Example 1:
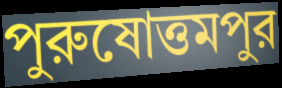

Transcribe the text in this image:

পুরুষোত্তমপুর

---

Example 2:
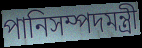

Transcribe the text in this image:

পানিসম্পদমন্ত্রী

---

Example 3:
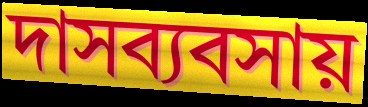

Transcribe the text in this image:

দাসব্যবসায়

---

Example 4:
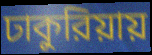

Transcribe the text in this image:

ঢাকুরিয়ায়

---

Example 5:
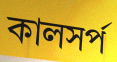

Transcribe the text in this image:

কালসর্প